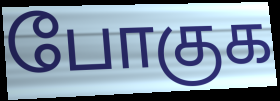
போகுக